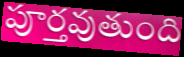
పూర్తవుతుంది